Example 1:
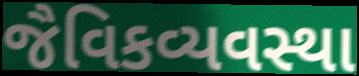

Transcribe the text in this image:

જૈવિકવ્યવસ્થા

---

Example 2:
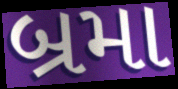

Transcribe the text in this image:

બ્રમા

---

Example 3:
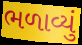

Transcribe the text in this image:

ભળાવ્યું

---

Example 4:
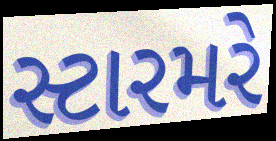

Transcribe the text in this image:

સ્ટારમરે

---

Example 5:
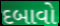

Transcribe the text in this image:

દબાવો